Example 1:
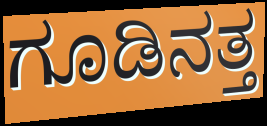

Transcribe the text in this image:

ಗೂಡಿನತ್ತ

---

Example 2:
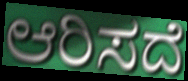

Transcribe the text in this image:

ಆರಿಸದೆ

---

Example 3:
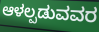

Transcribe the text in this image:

ಆಳಲ್ಪಡುವವರ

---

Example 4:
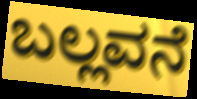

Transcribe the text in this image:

ಬಲ್ಲವನೆ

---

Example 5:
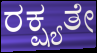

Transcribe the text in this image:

ರಕ್ಷ್ಯತೇ